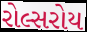
રોલ્સરોય